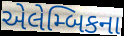
એલેમ્બિકના